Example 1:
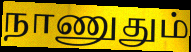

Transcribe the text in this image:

நாணுதும்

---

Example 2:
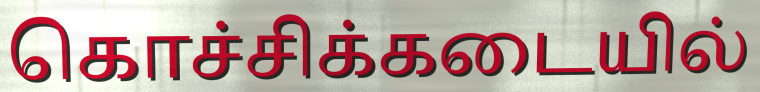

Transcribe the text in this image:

கொச்சிக்கடையில்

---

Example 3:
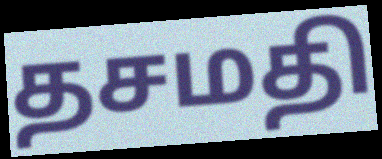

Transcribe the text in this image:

தசமதி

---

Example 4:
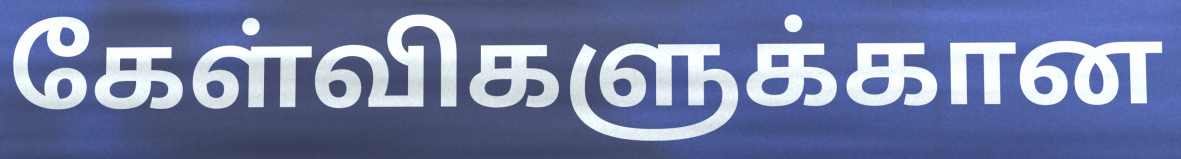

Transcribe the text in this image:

கேள்விகளுக்கான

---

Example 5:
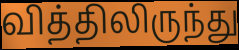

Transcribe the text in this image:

வித்திலிருந்து